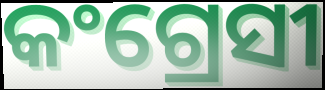
କଂଗ୍ରେସୀ